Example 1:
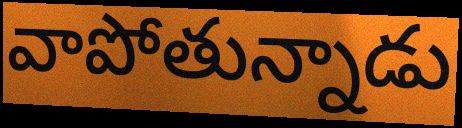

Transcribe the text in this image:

వాపోతున్నాడు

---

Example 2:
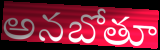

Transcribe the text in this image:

అనబోతూ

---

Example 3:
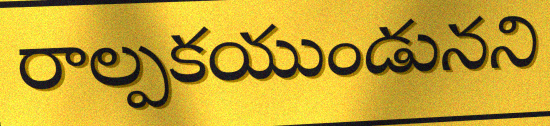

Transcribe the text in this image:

రాల్పకయుండునని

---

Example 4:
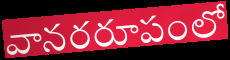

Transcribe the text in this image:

వానరరూపంలో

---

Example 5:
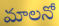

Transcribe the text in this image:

మాలనో